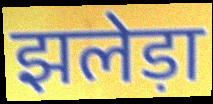
झलेड़ा